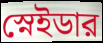
স্নেইডার